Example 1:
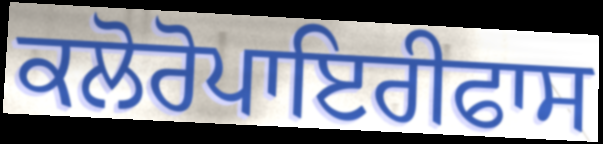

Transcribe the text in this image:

ਕਲੋਰੋਪਾਇਰੀਫਾਸ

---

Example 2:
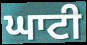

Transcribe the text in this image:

ਘਾਟੀ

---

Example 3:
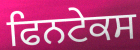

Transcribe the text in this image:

ਫਿਨਟੇਕਸ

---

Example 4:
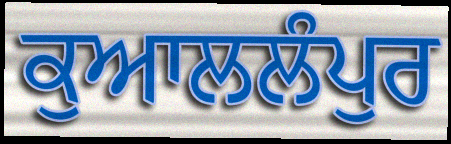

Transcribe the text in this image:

ਕੁਆਲਲੰਪੁਰ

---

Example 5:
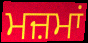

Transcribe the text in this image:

ਮਜ਼ਮਾਂ